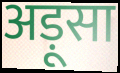
अड़ूसा